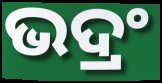
ଭଦ୍ରଂ